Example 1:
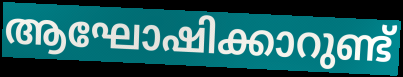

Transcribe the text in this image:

ആഘോഷിക്കാറുണ്ട്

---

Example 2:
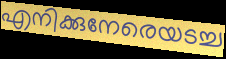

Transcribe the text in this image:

എനിക്കുനേരെയടച്ച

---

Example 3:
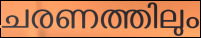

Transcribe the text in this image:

ചരണത്തിലും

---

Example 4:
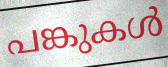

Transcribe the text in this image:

പങ്കുകൾ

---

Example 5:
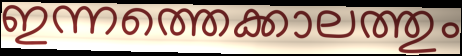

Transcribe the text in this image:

ഇന്നത്തെക്കാലത്തും